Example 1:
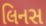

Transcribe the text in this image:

લિનસ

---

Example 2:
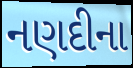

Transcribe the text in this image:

નણદીના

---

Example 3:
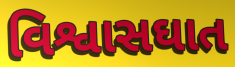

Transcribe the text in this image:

વિશ્વાસઘાત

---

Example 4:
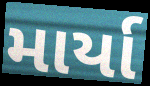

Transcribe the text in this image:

માર્યા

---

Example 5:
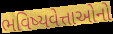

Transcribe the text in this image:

ભવિષ્યવેત્તાઓનો